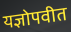
यज्ञोपवीत